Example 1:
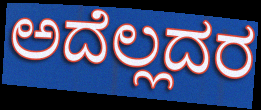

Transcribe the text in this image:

ಅದೆಲ್ಲದರ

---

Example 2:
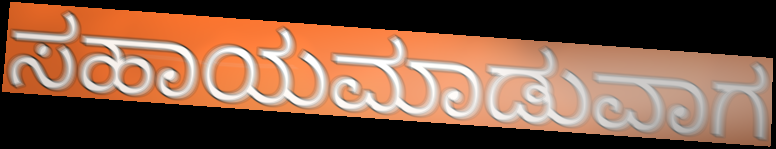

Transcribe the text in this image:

ಸಹಾಯಮಾಡುವಾಗ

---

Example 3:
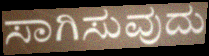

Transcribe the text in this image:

ಸಾಗಿಸುವುದು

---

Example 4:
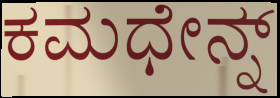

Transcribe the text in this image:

ಕಮಧೇನ್ನ್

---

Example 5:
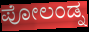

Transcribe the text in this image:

ಪೋಲಂಡ್ನ